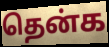
தென்க